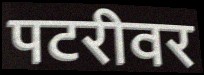
पटरीवर